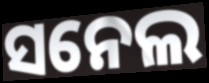
ସନେଲ